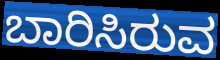
ಬಾರಿಸಿರುವ